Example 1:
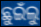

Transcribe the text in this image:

ଛୁଇଁଲୁ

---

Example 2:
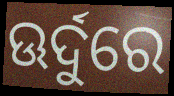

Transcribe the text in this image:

ଊର୍ଦୁରେ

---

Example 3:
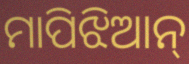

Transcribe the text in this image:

ମାପିଝିଆନ୍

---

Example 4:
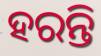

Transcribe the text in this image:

ହରନ୍ତି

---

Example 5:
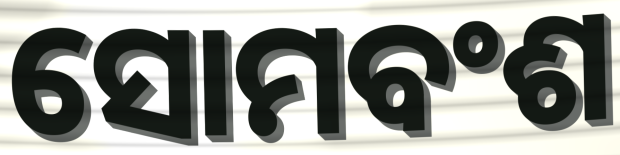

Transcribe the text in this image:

ସୋମବଂଶ